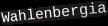
Wahlenbergia